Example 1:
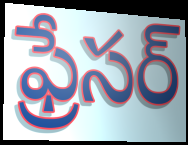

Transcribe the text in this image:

ఫ్రేసర్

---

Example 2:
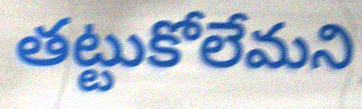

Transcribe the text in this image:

తట్టుకోలేమని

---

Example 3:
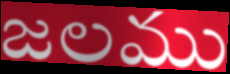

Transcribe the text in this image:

జలము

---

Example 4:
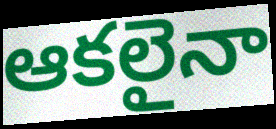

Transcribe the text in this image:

ఆకలైనా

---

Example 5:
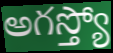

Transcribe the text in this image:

అగస్త్యో